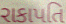
રાકાપતિ